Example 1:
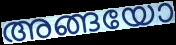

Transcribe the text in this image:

അങ്ങയോ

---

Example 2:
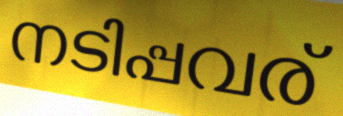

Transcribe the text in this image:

നടിപ്പവര്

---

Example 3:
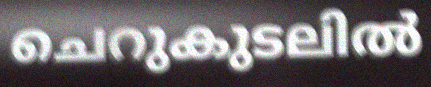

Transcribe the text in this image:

ചെറുകുടലിൽ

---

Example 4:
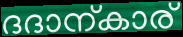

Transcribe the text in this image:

ദദാന്കാര്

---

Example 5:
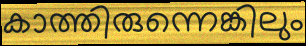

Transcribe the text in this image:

കാത്തിരുന്നെങ്കിലും